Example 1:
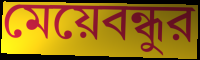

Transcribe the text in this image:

মেয়েবন্ধুর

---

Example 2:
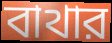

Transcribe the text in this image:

বাথার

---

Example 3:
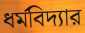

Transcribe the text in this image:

ধর্মবিদ্যার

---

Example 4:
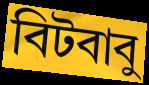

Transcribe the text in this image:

বিটবাবু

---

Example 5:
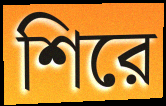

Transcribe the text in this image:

শিরে